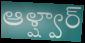
ఆళ్ష్వార్